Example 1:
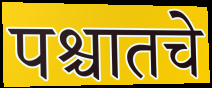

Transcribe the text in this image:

पश्चातचे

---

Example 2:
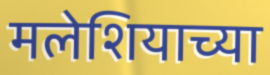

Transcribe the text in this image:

मलेशियाच्या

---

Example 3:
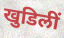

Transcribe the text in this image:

खुडिलीं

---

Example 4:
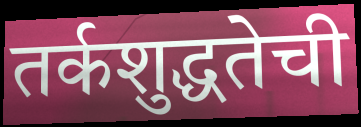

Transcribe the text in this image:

तर्कशुद्धतेची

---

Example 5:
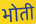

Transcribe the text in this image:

भोती